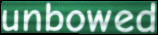
unbowed